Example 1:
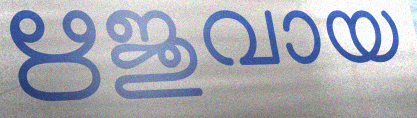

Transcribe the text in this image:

ഋജുവായ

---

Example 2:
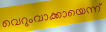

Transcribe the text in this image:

വെറുംവാക്കായെന്ന്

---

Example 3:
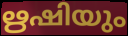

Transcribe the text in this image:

ഋഷിയും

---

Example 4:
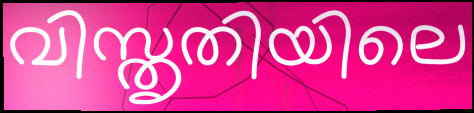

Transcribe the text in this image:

വിസ്തൃതിയിലെ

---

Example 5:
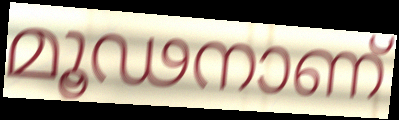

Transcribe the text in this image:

മൂഢനാണ്